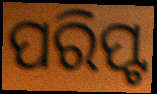
ପରିପ୍ଟ